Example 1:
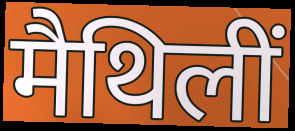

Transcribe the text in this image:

मैथिलीं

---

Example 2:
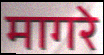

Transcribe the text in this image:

मागरे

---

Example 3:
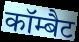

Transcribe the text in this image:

कॉम्बैट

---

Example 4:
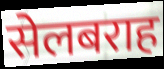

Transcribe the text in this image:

सेलबराह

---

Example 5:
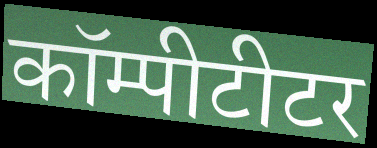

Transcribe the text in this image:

कॉम्पीटीटर